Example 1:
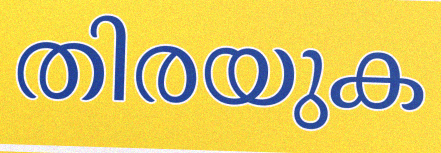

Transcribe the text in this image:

തിരയുക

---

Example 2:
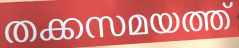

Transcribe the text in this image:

തക്കസമയത്ത്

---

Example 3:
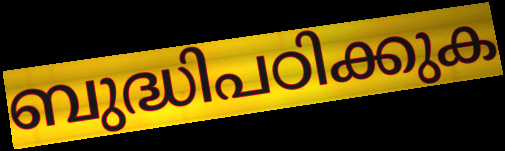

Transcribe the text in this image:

ബുദ്ധിപഠിക്കുക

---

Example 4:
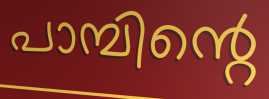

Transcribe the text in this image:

പാമ്പിന്റെ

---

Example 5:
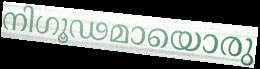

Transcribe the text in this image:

നിഗൂഢമായൊരു